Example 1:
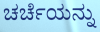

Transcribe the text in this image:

ಚರ್ಚೆಯನ್ನು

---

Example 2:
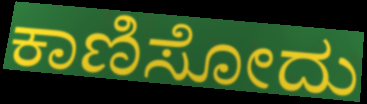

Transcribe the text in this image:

ಕಾಣಿಸೋದು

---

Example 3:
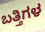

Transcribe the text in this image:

ಬತ್ತಿಗಳ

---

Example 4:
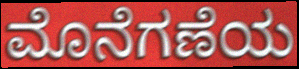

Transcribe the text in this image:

ಮೊನೆಗಣೆಯ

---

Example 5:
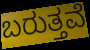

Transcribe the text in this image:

ಬರುತ್ತವೆ